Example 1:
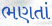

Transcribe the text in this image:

ભણતાં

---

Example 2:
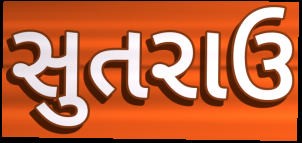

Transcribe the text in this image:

સુતરાઉ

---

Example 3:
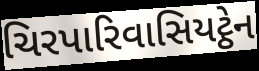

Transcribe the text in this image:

ચિરપારિવાસિયટ્ઠેન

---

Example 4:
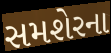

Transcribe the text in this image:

સમશેરના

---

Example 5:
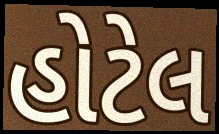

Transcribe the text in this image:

હોટેલ